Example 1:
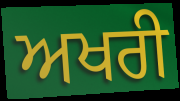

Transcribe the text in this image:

ਅਖਰੀ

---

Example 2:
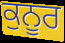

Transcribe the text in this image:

ਕੁਨੂਰ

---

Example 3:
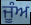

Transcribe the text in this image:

ਜੂੰਅ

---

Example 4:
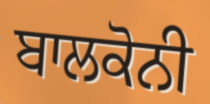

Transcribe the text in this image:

ਬਾਲਕੋਨੀ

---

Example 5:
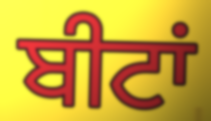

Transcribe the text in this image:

ਬੀਟਾਂ